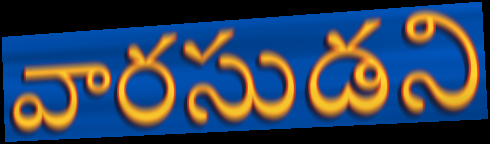
వారసుడని